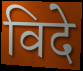
विदे